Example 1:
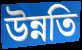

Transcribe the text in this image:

উন্নতি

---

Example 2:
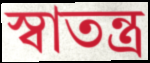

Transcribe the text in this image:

স্বাতন্ত্র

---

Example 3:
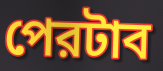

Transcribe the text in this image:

পেরটাব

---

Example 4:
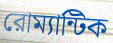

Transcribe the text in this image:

রোম্যান্টিক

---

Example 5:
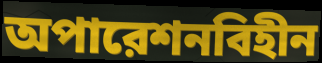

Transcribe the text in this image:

অপারেশনবিহীন